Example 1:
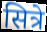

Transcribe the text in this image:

सित्रे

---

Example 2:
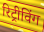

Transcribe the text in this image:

रिट्रीविंग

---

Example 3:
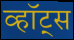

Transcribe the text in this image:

व्हॉट्स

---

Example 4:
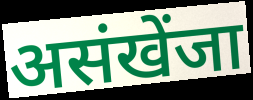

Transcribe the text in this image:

असंखेंजा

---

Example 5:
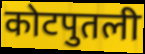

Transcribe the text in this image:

कोटपुतली